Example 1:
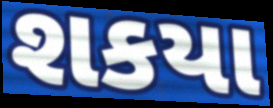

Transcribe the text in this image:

શકયા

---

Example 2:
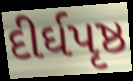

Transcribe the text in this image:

દીર્ઘપૃષ્ઠ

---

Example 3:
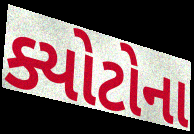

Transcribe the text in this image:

ક્યોટોના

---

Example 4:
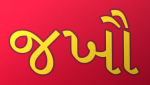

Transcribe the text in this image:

જખૌ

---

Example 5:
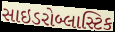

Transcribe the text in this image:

સાઇડરોબ્લાસ્ટિક